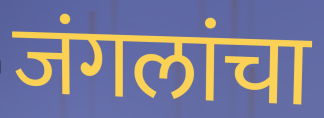
जंगलांचा